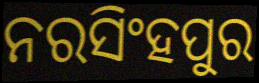
ନରସିଂହପୁର